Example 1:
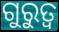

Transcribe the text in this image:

ଗୁରୁତ୍ବ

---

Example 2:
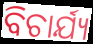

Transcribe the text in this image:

ବିଚାର୍ଯ୍ୟ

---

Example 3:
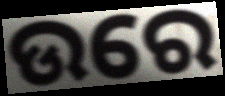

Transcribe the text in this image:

ଉରେ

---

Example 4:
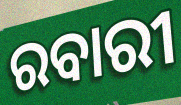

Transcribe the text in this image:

ରବାରୀ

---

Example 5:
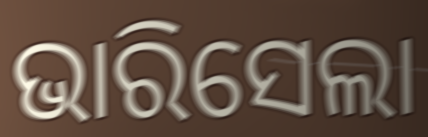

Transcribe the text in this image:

ଭାରିସେଲା